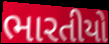
ભારતીયો